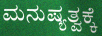
ಮನುಷ್ಯತ್ವಕ್ಕೆ